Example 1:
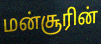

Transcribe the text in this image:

மன்சூரின்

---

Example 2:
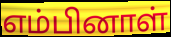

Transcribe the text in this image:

எம்பினாள்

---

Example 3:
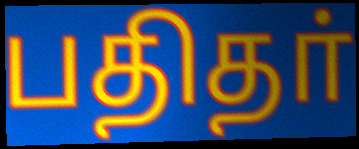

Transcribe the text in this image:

பதிதர்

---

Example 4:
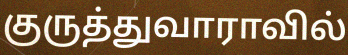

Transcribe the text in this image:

குருத்துவாராவில்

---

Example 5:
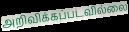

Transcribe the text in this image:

அறிவிக்கப்படவில்லை